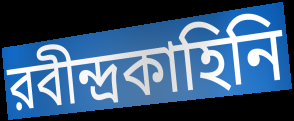
রবীন্দ্রকাহিনি